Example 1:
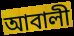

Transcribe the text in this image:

আবালী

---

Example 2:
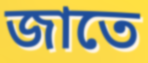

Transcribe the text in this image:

জাতে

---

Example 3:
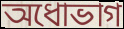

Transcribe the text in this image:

অধোভাগ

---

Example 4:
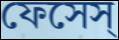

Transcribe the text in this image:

ফেসেস্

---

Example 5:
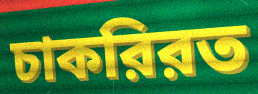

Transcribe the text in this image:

চাকরিরত